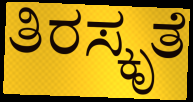
ತಿರಸ್ಕೃತೆ